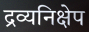
द्रव्यनिक्षेप